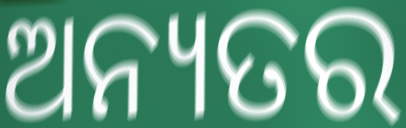
ଅନ୍ୟତର